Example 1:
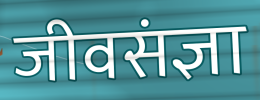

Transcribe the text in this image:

जीवसंज्ञा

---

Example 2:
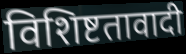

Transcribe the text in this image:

विशिष्टतावादी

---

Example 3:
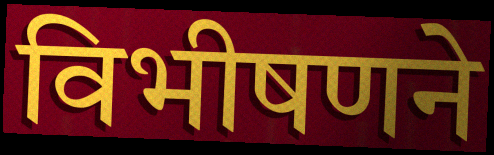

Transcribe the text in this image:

विभीषणने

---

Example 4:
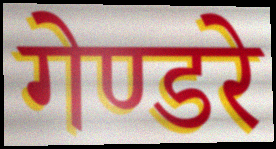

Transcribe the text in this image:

गेण्डरे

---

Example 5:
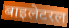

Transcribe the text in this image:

बाइलेटरल